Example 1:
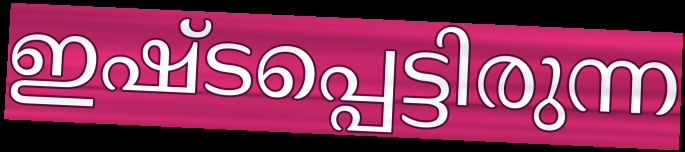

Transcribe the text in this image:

ഇഷ്ടപ്പെട്ടിരുന്ന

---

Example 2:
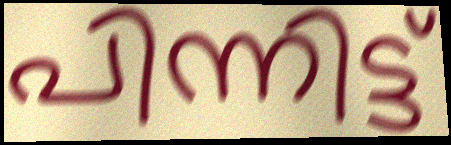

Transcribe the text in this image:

പിന്നിട്ട്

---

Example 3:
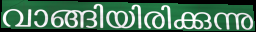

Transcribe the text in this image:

വാങ്ങിയിരിക്കുന്നു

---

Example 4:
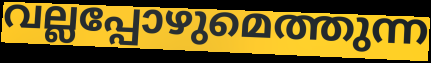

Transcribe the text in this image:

വല്ലപ്പോഴുമെത്തുന്ന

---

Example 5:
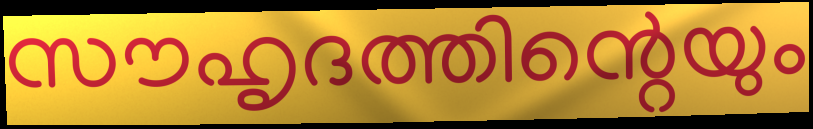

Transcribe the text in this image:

സൗഹൃദത്തിന്റെയും